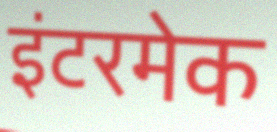
इंटरमेक